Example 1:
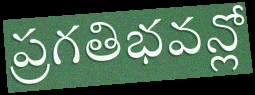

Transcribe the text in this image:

ప్రగతిభవన్లో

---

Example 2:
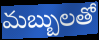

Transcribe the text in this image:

మబ్బులతో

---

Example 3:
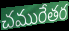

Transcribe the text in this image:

చమురేతర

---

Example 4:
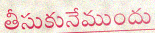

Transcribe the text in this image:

తీసుకునేముందు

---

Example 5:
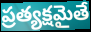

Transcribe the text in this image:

ప్రత్యక్షమైతే